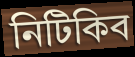
নিটিকিব